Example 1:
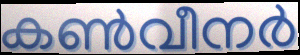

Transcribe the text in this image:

കൺവീനർ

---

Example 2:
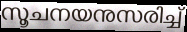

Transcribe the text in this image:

സൂചനയനുസരിച്ച്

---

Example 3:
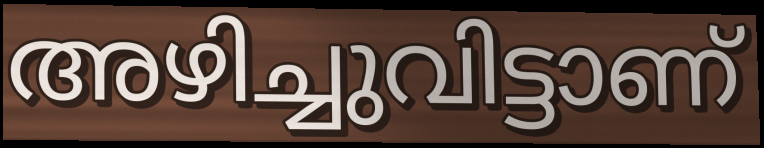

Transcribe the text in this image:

അഴിച്ചുവിട്ടാണ്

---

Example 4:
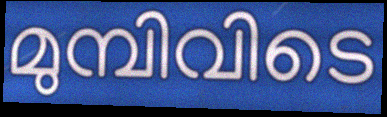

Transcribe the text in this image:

മുമ്പിവിടെ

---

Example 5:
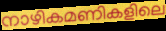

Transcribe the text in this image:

നാഴികമണികളിലെ